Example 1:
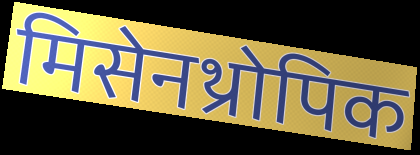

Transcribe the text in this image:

मिसेनथ्रोपिक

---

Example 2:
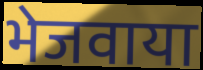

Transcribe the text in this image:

भेजवाया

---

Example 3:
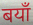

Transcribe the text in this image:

बयाँ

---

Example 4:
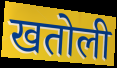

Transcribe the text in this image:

खतोली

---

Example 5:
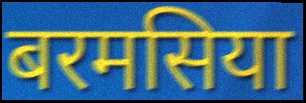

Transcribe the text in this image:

बरमसिया